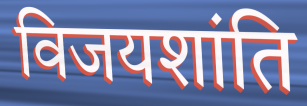
विजयशांति